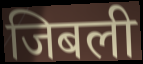
जिबली